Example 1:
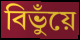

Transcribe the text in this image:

বিভুঁয়ে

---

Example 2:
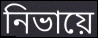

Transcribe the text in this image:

নিভায়ে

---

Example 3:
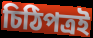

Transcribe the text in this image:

চিঠিপত্রই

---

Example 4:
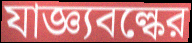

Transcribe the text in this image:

যাজ্ঞ্যবল্কের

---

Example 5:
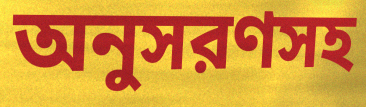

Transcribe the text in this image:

অনুসরণসহ